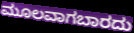
ಮೂಲವಾಗಬಾರದು